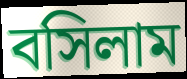
বসিলাম